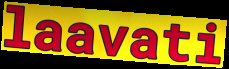
laavati